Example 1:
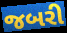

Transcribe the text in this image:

જબરી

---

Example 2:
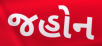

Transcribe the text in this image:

જહોન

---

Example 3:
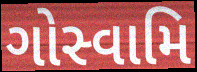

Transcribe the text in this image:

ગોસ્વામિ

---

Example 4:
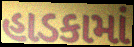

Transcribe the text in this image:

હાડકામાં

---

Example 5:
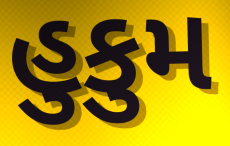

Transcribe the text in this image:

હુકુમ